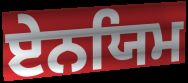
ਏਨਯਿਮ